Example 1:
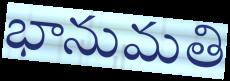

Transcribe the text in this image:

భానుమతి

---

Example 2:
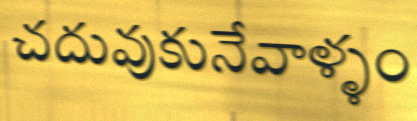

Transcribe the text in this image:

చదువుకునేవాళ్ళం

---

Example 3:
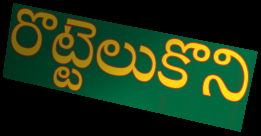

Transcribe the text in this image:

రొట్టెలుకొని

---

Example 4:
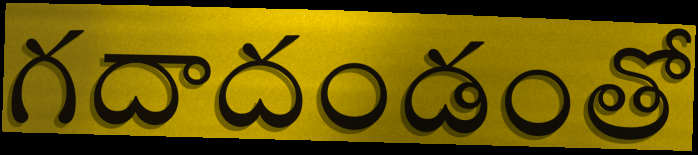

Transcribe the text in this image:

గదాదండంతో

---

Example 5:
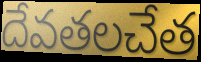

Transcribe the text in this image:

దేవతలచేత